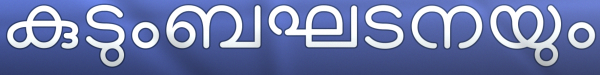
കുടുംബഘടനയും